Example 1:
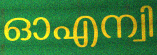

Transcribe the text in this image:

ഓഎന്വി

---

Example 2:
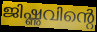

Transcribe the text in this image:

ജിഷ്ണുവിന്റെ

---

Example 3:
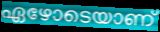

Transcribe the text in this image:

ഏഴോടെയാണ്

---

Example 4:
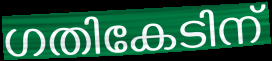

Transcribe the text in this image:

ഗതികേടിന്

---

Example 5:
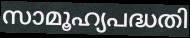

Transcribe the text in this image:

സാമൂഹ്യപദ്ധതി